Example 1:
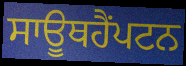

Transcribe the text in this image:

ਸਾਊਥਹੈਂਪਟਨ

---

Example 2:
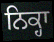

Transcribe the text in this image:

ਨਿਕ੍ਹਾ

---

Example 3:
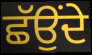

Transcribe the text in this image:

ਛੱਉਂਦੇ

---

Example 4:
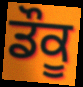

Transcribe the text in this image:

ਡੌਕੂ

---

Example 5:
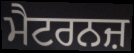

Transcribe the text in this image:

ਮੈਟਰਨਜ਼